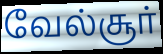
வேல்சூர்